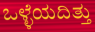
ಒಳ್ಳೆಯದಿತ್ತು